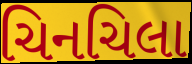
ચિનચિલા